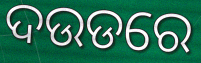
ଦଉଡରେ